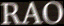
RAO